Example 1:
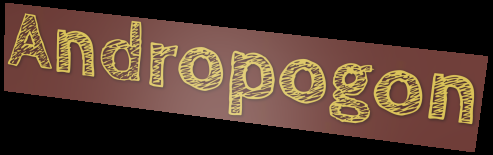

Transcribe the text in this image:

Andropogon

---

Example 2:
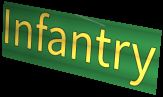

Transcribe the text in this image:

Infantry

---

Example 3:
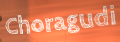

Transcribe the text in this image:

Choragudi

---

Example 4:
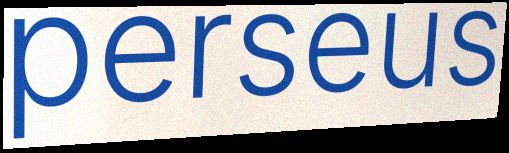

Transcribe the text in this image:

perseus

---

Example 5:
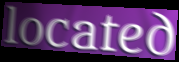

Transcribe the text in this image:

located